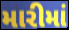
મારીમાં